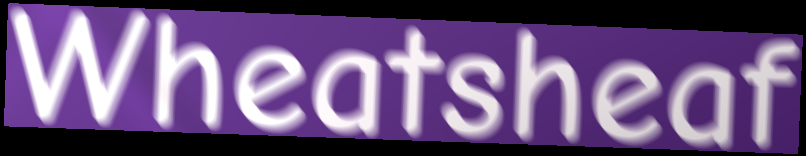
Wheatsheaf